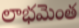
లాభమెంత